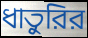
ধাতুরির